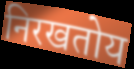
निरखतोय